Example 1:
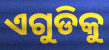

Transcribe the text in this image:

ଏଗୁଡିକୁ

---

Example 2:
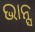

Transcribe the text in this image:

ଭାନ୍ସ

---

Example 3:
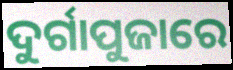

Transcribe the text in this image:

ଦୁର୍ଗାପୁଜାରେ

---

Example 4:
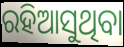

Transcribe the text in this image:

ରହିଆସୁଥିବା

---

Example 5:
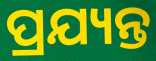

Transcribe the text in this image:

ପ୍ରଯ୍ୟନ୍ତ